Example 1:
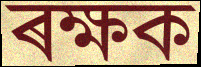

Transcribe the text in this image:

ৰক্ষক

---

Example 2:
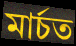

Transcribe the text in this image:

মাৰ্চত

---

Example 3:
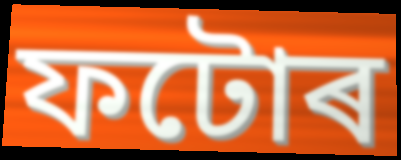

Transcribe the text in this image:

ফটোৰ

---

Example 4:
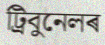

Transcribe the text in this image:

ট্ৰিবুনেলৰ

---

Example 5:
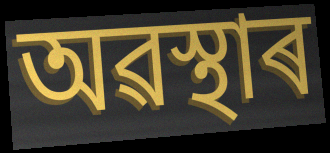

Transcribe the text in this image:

অৱস্থাৰ